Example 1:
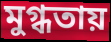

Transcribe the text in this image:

মুগ্ধতায়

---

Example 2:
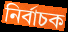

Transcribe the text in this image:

নির্বাচক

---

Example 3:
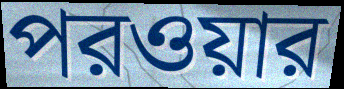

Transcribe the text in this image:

পরওয়ার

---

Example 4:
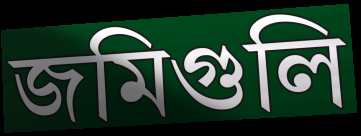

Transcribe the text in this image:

জমিগুলি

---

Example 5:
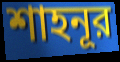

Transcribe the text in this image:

শাহনূর